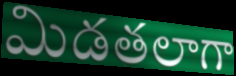
మిడతలాగా